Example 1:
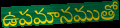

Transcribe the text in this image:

ఉపమానముతో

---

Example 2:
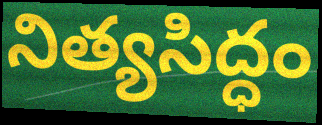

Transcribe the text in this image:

నిత్యసిద్ధం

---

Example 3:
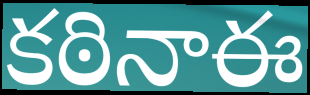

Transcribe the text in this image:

కఠినాఈ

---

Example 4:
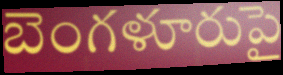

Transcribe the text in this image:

బెంగళూరుపై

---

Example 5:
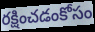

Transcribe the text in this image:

రక్షించడంకోసం